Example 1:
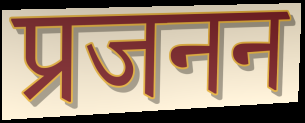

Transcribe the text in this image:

प्रजनन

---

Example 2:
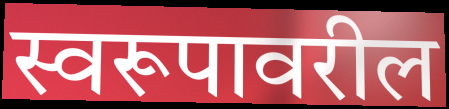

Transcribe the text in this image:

स्वरूपावरील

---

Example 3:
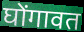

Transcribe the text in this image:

घोंगावत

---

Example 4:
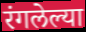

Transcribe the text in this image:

रंगलेल्या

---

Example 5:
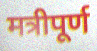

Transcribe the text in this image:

मत्रीपूर्ण